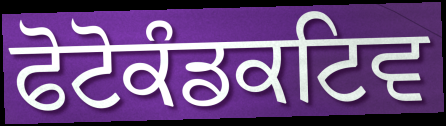
ਫੋਟੋਕੰਡਕਟਿਵ